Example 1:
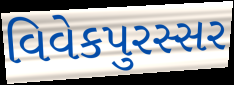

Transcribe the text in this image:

વિવેકપુરસ્સર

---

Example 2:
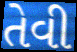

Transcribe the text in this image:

તેવી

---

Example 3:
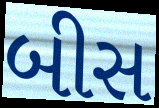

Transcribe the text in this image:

બીસ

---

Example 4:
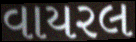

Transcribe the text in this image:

વાયરલ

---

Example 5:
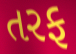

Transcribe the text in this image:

તરફ